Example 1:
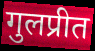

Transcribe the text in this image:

गुलप्रीत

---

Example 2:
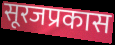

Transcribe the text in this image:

सूरजप्रकास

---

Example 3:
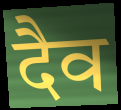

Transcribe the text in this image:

दैव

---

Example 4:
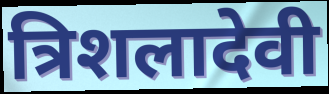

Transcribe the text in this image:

त्रिशलादेवी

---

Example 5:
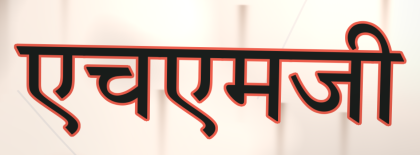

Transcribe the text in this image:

एचएमजी